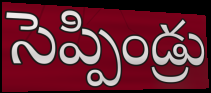
సెప్పిండ్రు